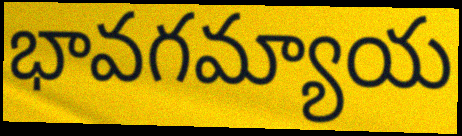
భావగమ్యాయ